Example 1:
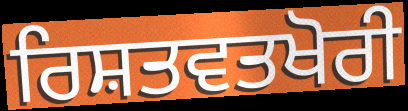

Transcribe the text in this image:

ਰਿਸ਼ਤਵਤਖੋਰੀ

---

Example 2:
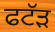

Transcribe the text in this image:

ਫਟੱੜ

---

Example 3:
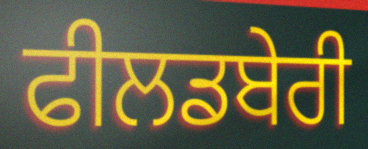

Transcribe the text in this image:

ਫੀਲਡਬੇਰੀ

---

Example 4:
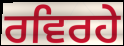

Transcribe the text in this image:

ਰਵਿਰਹੇ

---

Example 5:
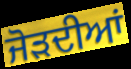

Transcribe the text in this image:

ਜੋੜਦੀਆਂ